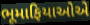
ભૂમાફિયાઓએ